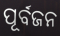
ପୂର୍ବଜନ